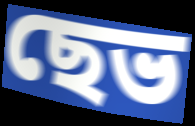
ছেভ